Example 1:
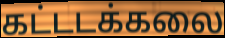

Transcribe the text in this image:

கட்டடக்கலை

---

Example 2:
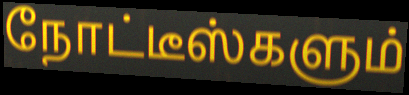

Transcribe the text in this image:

நோட்டீஸ்களும்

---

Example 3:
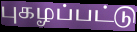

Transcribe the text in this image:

புகழப்பட்டு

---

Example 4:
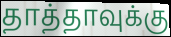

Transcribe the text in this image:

தாத்தாவுக்கு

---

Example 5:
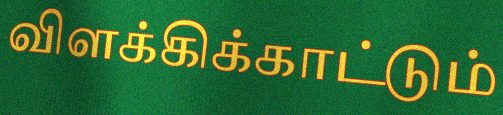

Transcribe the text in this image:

விளக்கிக்காட்டும்